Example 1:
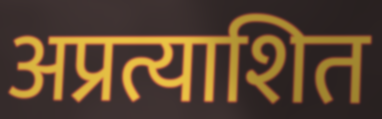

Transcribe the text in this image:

अप्रत्याशित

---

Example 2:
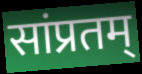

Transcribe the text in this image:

सांप्रतम्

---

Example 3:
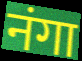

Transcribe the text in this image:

नंगा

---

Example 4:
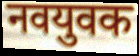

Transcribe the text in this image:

नवयुवक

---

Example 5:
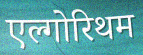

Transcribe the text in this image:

एल्गोरिथम